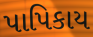
પાપિકાય